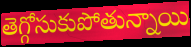
తెగ్గోసుకుపోతున్నాయి